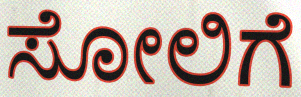
ಸೋಲಿಗೆ